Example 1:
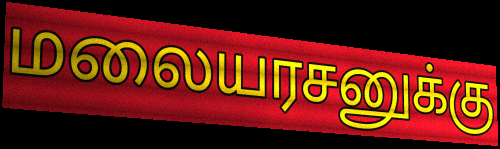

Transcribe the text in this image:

மலையரசனுக்கு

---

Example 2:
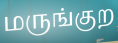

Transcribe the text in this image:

மருங்குற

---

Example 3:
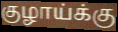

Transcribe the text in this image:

குழாய்க்கு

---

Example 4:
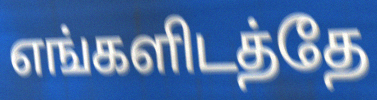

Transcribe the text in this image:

எங்களிடத்தே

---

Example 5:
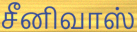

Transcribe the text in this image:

சீனிவாஸ்